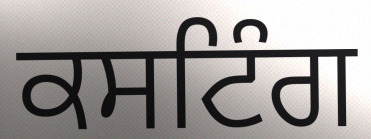
ਕਸਟਿੰਗ